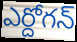
ఎర్దోగన్